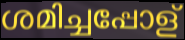
ശമിച്ചപ്പോള്